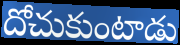
దోచుకుంటాడు